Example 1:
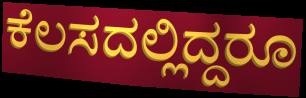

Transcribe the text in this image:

ಕೆಲಸದಲ್ಲಿದ್ದರೂ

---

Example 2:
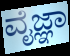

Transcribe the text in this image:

ವೈಜ್ಞಾ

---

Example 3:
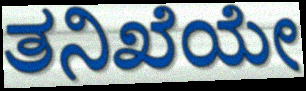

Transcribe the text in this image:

ತನಿಖೆಯೇ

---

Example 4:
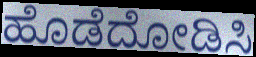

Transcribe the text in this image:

ಹೊಡೆದೋಡಿಸಿ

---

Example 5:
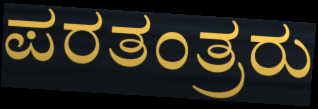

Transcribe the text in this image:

ಪರತಂತ್ರರು